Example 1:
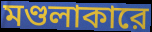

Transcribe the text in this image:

মণ্ডলাকারে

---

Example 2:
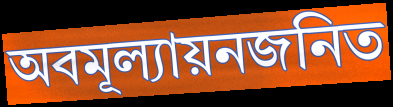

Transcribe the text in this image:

অবমূল্যায়নজনিত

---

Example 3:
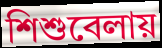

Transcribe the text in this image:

শিশুবেলায়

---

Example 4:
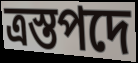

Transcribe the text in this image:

ত্রস্তপদে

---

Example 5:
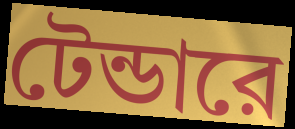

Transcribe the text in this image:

টেন্ডারে